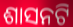
ଶାସନଟି